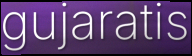
gujaratis